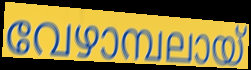
വേഴാമ്പലായ്